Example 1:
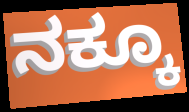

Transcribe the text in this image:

ನಕ್ಕೂ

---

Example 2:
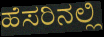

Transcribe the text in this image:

ಹೆಸರಿನಲ್ಲಿ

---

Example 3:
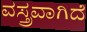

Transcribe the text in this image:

ವಸ್ತ್ರವಾಗಿದೆ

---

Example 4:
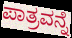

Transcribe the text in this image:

ಪಾತ್ರವನ್ನೆ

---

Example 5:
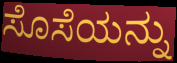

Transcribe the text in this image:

ಸೊಸೆಯನ್ನು